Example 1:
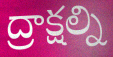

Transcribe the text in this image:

ద్రాక్షల్ని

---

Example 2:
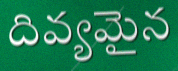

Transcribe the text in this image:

దివ్యమైన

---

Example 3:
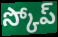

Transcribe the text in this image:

స్కోప్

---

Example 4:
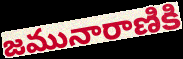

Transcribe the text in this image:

జమునారాణికి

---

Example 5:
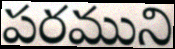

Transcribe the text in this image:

పరముని